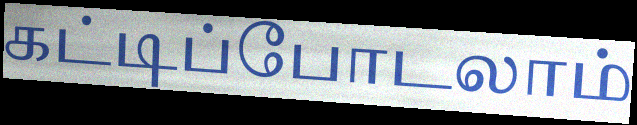
கட்டிப்போடலாம்